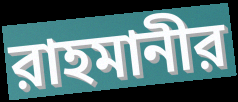
রাহমানীর